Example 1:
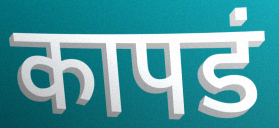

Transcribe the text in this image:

कापडं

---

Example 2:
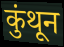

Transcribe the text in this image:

कुंथून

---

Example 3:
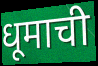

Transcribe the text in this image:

धूमाची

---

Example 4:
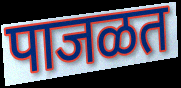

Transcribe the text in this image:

पाजळत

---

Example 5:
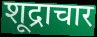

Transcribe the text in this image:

शूद्राचार